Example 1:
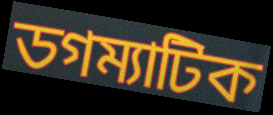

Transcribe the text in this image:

ডগম্যাটিক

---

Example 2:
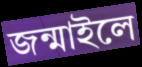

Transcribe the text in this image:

জন্মাইলে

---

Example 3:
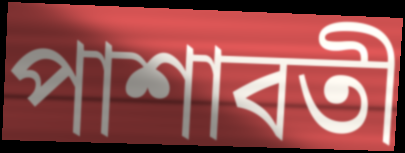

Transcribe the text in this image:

পাশাবতী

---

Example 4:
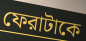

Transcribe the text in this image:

ফেরাটাকে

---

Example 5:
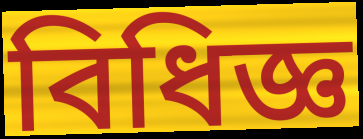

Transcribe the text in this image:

বিধিজ্ঞ